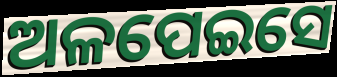
ଅଳପେଇସେ